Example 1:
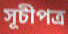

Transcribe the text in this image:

সূচীপত্র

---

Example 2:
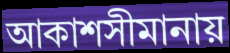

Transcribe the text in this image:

আকাশসীমানায়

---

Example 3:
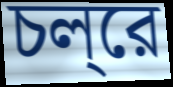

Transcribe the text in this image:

চল্‌রে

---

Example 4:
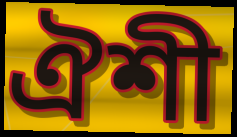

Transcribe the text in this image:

ঐশী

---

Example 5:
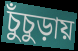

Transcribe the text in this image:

চুঁচুড়ায়